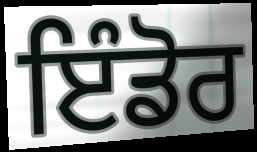
ਇੰਡੋਰ